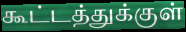
கூட்டத்துக்குள்